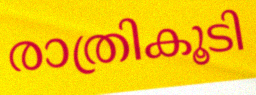
രാത്രികൂടി